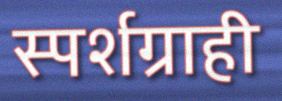
स्पर्शग्राही